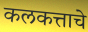
कलकत्ताचे